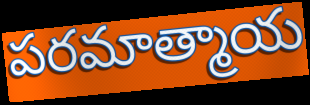
పరమాత్మాయ